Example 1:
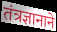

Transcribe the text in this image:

तंत्रज्ञानाने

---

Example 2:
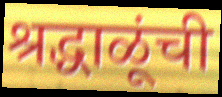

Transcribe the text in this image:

श्रद्धाळूंची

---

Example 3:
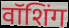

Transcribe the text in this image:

वॉशिंग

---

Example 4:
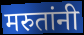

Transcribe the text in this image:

मरुतांनी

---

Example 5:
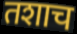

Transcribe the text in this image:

तशाच